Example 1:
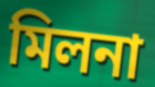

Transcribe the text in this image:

মিলনা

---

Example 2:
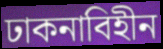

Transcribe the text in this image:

ঢাকনাবিহীন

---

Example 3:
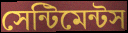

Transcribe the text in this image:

সেন্টিমেন্টস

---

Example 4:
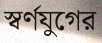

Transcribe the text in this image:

স্বর্ণযুগের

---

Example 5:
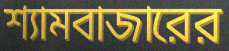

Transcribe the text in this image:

শ্যামবাজারের